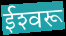
ईश्वरू